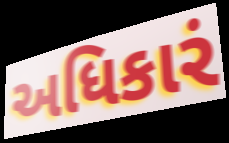
અધિકારં